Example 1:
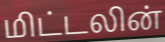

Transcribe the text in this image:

மிட்டலின்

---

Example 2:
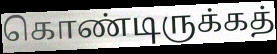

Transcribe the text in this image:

கொண்டிருக்கத்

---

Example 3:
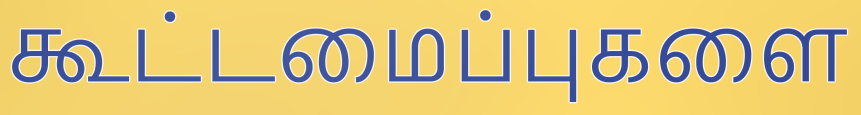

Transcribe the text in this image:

கூட்டமைப்புகளை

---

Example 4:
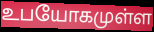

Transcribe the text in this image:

உபயோகமுள்ள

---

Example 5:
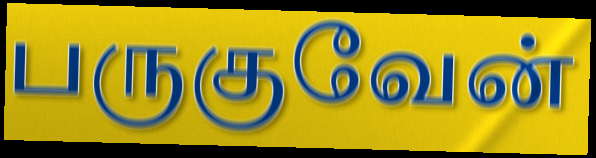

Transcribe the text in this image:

பருகுவேன்